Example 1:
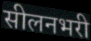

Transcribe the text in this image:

सीलनभरी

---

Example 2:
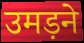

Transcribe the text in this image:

उमड़ने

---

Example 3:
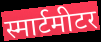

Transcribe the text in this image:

स्मार्टमीटर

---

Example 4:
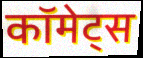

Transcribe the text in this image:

कॉमेट्स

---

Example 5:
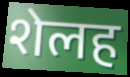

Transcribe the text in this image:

शेलह